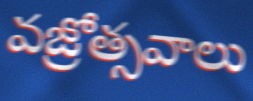
వజ్రోత్సవాలు